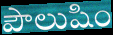
పౌలుషిం